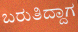
ಬರುತಿದ್ದಾಗ